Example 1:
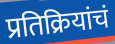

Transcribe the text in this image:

प्रतिक्रियांचं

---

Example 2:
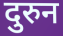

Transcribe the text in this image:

दुरुन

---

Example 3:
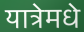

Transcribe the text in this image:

यात्रेमधे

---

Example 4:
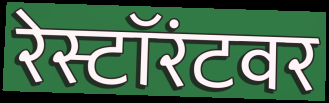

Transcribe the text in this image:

रेस्टॉरंटवर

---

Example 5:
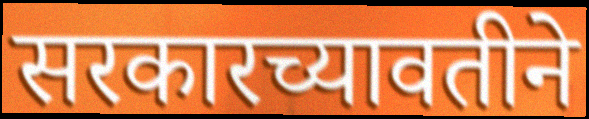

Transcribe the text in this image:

सरकारच्यावतीने